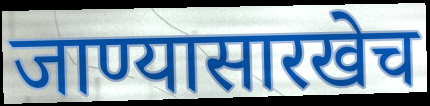
जाण्यासारखेच